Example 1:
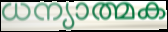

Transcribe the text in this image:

ധന്യാത്മക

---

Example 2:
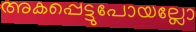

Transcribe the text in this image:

അകപ്പെട്ടുപോയല്ലോ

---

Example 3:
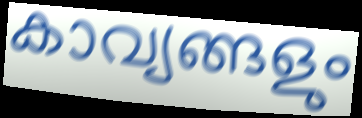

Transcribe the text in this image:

കാവ്യങ്ങളും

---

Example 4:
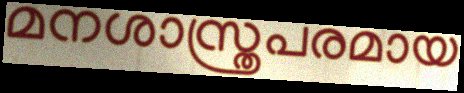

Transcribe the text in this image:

മനശാസ്ത്രപരമായ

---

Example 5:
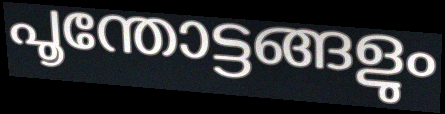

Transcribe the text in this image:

പൂന്തോട്ടങ്ങളും